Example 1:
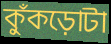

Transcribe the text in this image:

কুঁকড়োটা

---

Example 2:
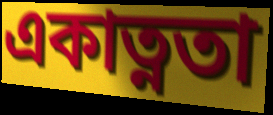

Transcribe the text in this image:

একাত্নতা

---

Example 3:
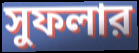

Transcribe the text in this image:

সুফলার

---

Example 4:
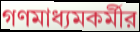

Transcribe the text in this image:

গণমাধ্যমকর্মীর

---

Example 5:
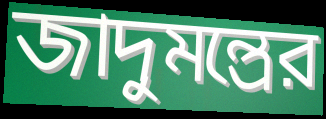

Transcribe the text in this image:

জাদুমন্ত্রের